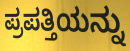
ಪ್ರಪತ್ತಿಯನ್ನು